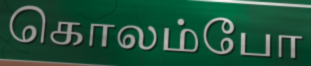
கொலம்போ